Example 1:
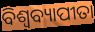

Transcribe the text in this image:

ବିଶ୍ୱବ୍ୟାପୀତା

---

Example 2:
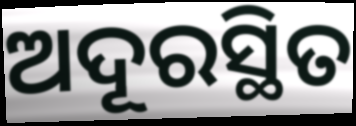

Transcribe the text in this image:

ଅଦୂରସ୍ଥିତ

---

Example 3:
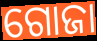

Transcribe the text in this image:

ଗୋଜା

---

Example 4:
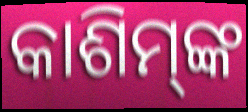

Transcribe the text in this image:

କାଶିମ୍‍ଙ୍କ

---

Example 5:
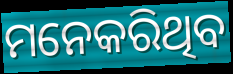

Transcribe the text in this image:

ମନେକରିଥିବ